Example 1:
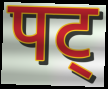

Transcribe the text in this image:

पट्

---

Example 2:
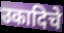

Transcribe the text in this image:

उकादिचे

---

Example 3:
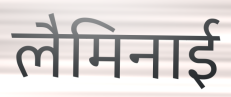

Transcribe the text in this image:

लैमिनाई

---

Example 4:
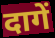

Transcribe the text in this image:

दागें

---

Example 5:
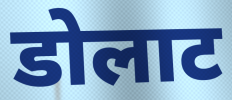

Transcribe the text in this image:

डोलाट